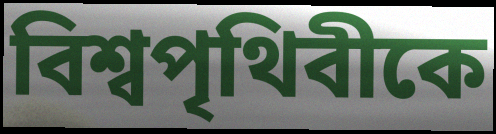
বিশ্বপৃথিবীকে